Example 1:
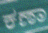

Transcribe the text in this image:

ಕಣಾ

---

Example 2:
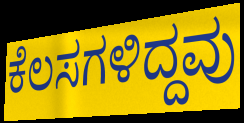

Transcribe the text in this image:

ಕೆಲಸಗಳಿದ್ದವು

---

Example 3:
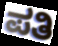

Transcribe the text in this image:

ಪತಿ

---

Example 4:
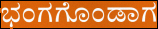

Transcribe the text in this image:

ಭಂಗಗೊಂಡಾಗ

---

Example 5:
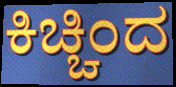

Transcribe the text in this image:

ಕಿಚ್ಚಿಂದ